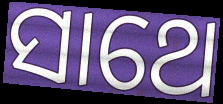
ସାଥେ